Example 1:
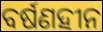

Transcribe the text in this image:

ବର୍ଷଣହୀନ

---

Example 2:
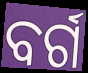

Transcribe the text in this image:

ବର୍ଗ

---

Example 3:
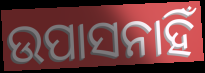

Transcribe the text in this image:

ଉପାସନାହିଁ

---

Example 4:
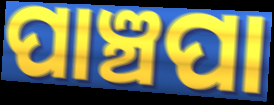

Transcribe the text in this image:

ପାଞ୍ଚପା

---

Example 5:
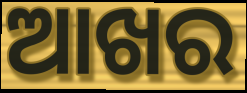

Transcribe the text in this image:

ଆଖର